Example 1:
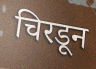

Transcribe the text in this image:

चिरडून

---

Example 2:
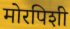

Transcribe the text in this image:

मोरपिशी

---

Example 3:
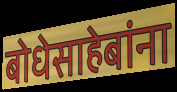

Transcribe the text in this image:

बोधेसाहेबांना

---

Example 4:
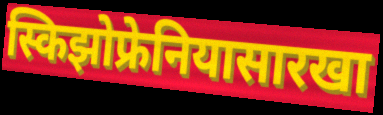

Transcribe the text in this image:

स्किझोफ्रेनियासारखा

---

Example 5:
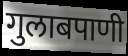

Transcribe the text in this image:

गुलाबपाणी